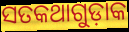
ସତକଥାଗୁଡ଼ାକ